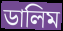
ডালিম